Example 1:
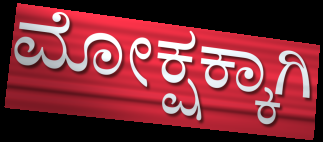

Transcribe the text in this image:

ಮೋಕ್ಷಕ್ಕಾಗಿ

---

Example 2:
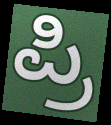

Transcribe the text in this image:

ಪ್ರಿ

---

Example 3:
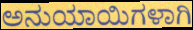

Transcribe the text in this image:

ಅನುಯಾಯಿಗಳಾಗಿ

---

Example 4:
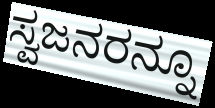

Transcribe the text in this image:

ಸ್ವಜನರನ್ನೂ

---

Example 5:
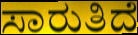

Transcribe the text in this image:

ಸಾರುತಿದೆ